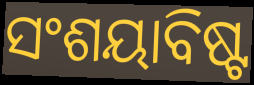
ସଂଶୟାବିଷ୍ଟ